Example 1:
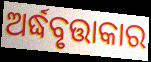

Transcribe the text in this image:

ଅର୍ଦ୍ଧବୃତ୍ତାକାର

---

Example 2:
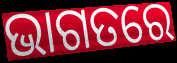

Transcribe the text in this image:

ଭାଗତରେ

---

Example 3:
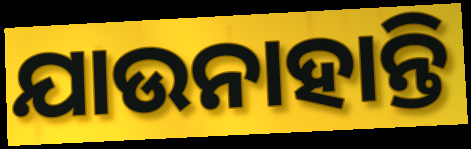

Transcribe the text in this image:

ଯାଉନାହାନ୍ତି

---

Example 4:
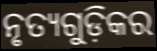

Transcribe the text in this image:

ନୃତ୍ୟଗୁଡ଼ିକର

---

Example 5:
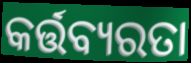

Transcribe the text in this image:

କର୍ତ୍ତବ୍ୟରତା